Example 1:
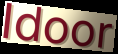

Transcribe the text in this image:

Idoor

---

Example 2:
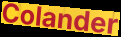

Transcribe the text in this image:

Colander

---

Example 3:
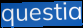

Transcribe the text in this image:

questia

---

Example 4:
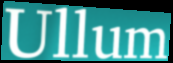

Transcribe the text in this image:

Ullum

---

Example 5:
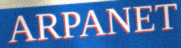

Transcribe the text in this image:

ARPANET